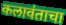
कलावंताचा